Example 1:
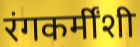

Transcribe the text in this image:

रंगकर्मींशी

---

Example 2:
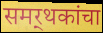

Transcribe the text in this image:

समर्थकांचा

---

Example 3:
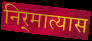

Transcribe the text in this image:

निर्मात्यास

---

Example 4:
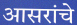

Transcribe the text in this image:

आसरांचे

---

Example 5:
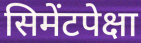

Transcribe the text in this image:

सिमेंटपेक्षा